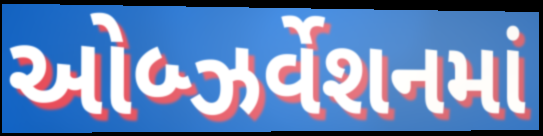
ઓબ્ઝર્વેશનમાં